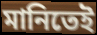
মানিতেই